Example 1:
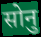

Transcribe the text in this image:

सोनु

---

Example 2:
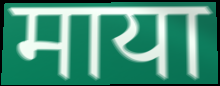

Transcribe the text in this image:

माया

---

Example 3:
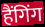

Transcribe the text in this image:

हैंगिंग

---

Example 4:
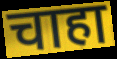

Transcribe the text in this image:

चाहा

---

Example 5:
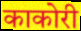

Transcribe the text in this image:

काकोरी